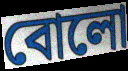
বোলো